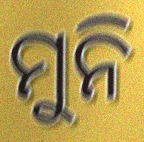
ମୁନି